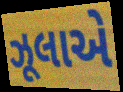
ઝૂલાએ